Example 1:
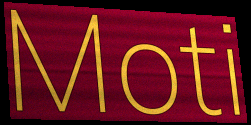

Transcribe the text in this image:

Moti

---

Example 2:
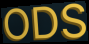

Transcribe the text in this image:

ODS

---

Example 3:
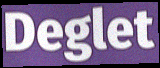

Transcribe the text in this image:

Deglet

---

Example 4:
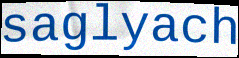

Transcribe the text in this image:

saglyach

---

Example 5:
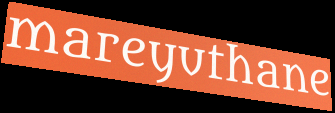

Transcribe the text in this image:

mareyuthane